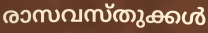
രാസവസ്തുക്കൾ